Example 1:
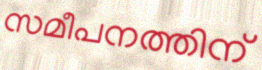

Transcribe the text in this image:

സമീപനത്തിന്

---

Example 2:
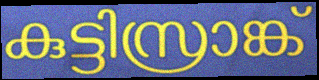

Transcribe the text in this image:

കുട്ടിസ്രാങ്ക്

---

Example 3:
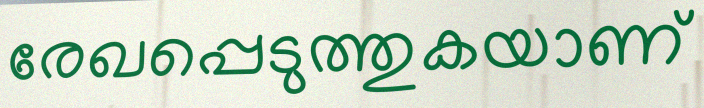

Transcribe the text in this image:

രേഖപ്പെടുത്തുകയാണ്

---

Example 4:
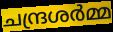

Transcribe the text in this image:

ചന്ദ്രശർമ്മ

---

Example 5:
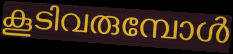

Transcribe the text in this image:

കൂടിവരുമ്പോൾ